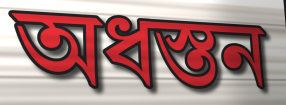
অধস্তন